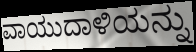
ವಾಯುದಾಳಿಯನ್ನು